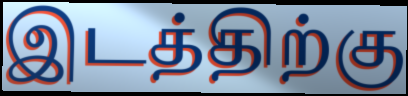
இடத்திற்கு